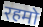
रहमो